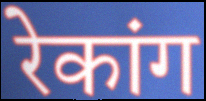
रेकांग